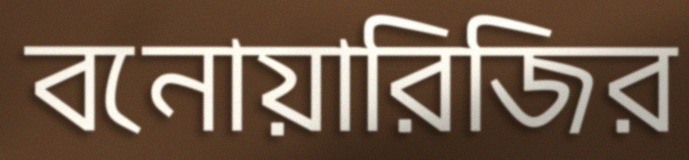
বনোয়ারিজির